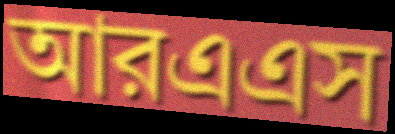
আরএএস